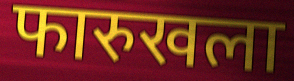
फारुखला